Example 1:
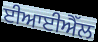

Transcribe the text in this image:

ਈਆਈਐੱਲ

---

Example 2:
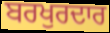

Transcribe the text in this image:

ਬਰਖੁਰਦਾਰ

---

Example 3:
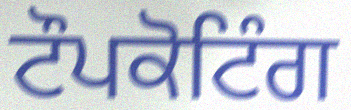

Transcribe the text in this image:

ਟੌਪਕੋਟਿੰਗ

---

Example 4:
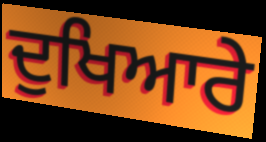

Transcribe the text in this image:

ਦੁਖਿਆਰੇ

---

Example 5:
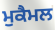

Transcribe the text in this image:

ਮੁਕੈਮਲ